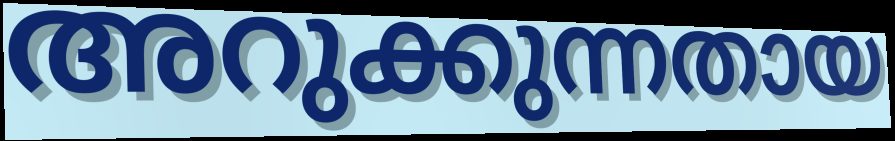
അറുക്കുന്നതായ